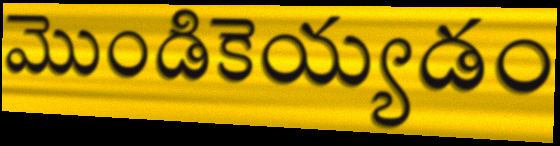
మొండికెయ్యడం